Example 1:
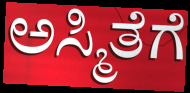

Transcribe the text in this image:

ಅಸ್ಮಿತೆಗೆ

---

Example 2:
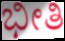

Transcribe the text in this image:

ಭೀತಿ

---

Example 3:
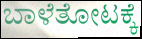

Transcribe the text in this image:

ಬಾಳೆತೋಟಕ್ಕೆ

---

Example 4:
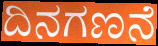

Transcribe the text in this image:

ದಿನಗಣನೆ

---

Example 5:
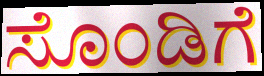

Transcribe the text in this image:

ಸೊಂಡಿಗೆ